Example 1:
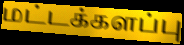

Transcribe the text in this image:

மட்டக்களப்பு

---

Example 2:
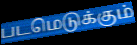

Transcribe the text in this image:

படமெடுக்கும்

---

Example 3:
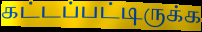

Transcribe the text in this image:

கட்டப்பட்டிருக்க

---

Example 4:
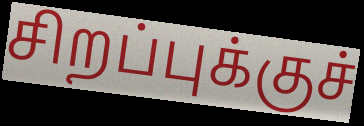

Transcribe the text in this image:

சிறப்புக்குச்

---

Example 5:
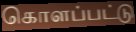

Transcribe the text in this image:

கொளப்பட்டு